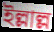
ইল্লাল্ল